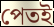
পেতই